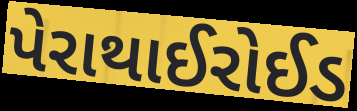
પેરાથાઈરોઈડ